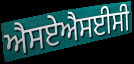
ਐਸਏਐਸਈਸੀ